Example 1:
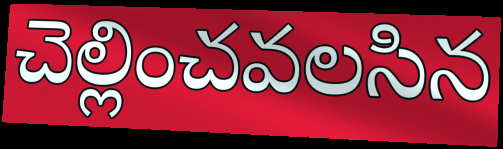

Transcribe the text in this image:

చెల్లించవలసిన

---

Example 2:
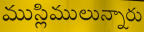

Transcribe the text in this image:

ముస్లిములున్నారు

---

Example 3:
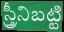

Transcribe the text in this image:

స్త్రీనిబట్టి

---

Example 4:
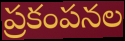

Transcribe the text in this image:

ప్రకంపనల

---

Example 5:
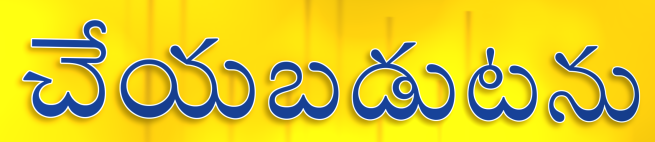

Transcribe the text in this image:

చేయబడుటను